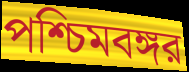
পশ্চিমবঙ্গর